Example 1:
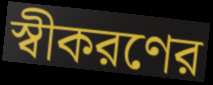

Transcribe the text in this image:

স্বীকরণের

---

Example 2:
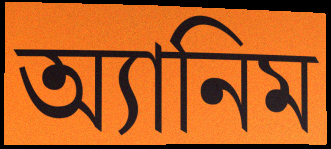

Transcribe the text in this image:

অ্যানিম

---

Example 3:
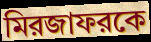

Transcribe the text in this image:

মিরজাফরকে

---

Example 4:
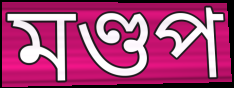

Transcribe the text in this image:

মণ্ডপ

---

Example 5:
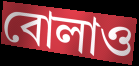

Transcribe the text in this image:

বোলাও